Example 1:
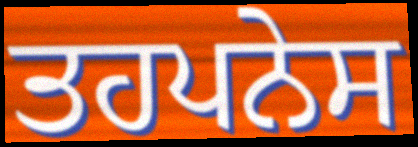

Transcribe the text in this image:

ਤਹਪਨੇਸ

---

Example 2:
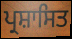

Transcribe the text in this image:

ਪ੍ਰਸ਼ਾਸਿਤ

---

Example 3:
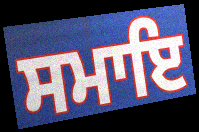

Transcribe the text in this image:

ਸਮਾਇ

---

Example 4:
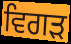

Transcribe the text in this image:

ਵਿਗੜ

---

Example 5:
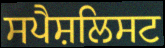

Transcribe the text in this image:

ਸਪੈਸ਼ਲਿਸਟ